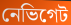
নেভিগেট